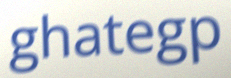
ghategp